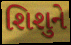
શિશુને